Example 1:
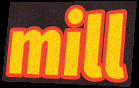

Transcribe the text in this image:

mill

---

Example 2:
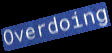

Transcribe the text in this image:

Overdoing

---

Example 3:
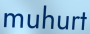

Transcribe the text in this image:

muhurt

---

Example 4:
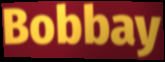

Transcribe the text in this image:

Bobbay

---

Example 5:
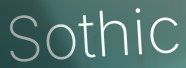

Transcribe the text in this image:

Sothic